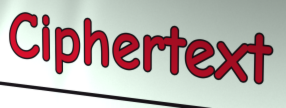
Ciphertext